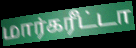
மார்கரீட்டா